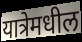
यात्रेमधील